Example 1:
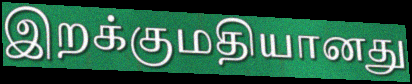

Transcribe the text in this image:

இறக்குமதியானது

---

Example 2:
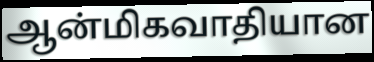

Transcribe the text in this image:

ஆன்மிகவாதியான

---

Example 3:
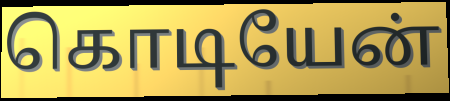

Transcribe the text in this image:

கொடியேன்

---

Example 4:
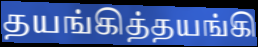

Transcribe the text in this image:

தயங்கித்தயங்கி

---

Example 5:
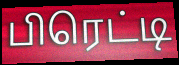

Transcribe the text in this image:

பிரெட்டி